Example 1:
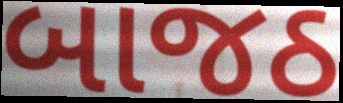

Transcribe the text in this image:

બાજઠ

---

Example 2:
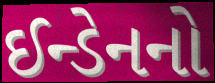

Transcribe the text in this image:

ઈન્ડેનનો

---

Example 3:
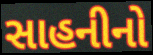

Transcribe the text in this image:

સાહનીનો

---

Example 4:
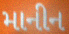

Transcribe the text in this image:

માનીન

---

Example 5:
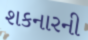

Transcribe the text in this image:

શકનારની